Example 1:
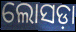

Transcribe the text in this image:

ଲୋସଡ଼ା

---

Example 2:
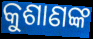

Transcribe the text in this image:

କୁଶାଣଙ୍କ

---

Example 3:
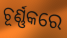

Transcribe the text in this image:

ଚୂର୍ଣ୍ଣକରେ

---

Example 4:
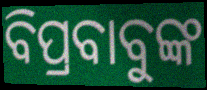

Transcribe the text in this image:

ବିପ୍ରବାବୁଙ୍କ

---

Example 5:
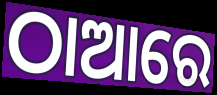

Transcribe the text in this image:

ଠାଆରେ